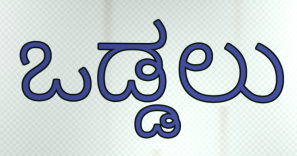
ಒಡ್ಡಲು